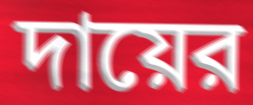
দায়ের